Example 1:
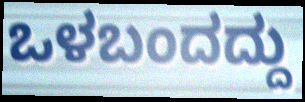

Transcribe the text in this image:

ಒಳಬಂದದ್ದು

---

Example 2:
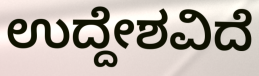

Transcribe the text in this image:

ಉದ್ದೇಶವಿದೆ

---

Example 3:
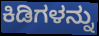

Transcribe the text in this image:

ಕಿಡಿಗಳನ್ನು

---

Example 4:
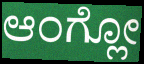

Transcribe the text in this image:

ಆಂಗ್ಲೋ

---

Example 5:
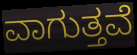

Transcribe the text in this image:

ವಾಗುತ್ತವೆ